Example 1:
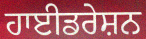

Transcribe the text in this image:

ਹਾਈਡਰੇਸ਼ਨ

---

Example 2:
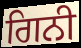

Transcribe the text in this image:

ਗਿਨੀ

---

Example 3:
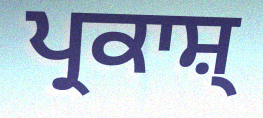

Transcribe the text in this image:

ਪ੍ਰਕਾਸ਼੍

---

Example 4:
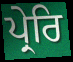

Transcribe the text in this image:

ਪ੍ਰੇਰਿ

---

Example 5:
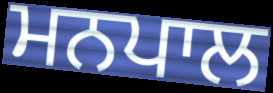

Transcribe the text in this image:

ਮਨਪਾਲ